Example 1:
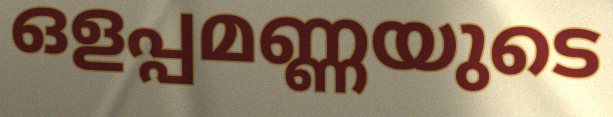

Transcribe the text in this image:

ഒളപ്പമണ്ണയുടെ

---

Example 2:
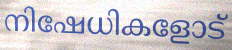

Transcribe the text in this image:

നിഷേധികളോട്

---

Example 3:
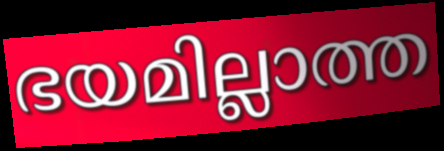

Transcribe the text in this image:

ഭയമില്ലാത്ത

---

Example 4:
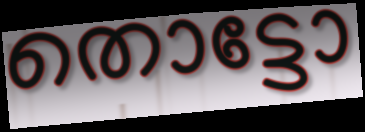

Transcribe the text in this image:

തൊട്ടോ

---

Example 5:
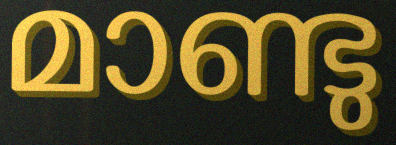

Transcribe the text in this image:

മാണ്ടു